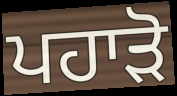
ਪਹਾੜੋ